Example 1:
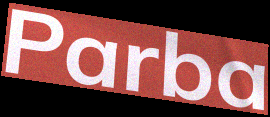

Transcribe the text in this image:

Parba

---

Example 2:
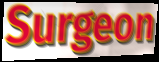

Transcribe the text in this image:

Surgeon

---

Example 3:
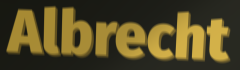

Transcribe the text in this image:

Albrecht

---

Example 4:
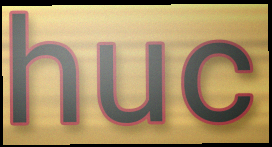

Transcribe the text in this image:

huc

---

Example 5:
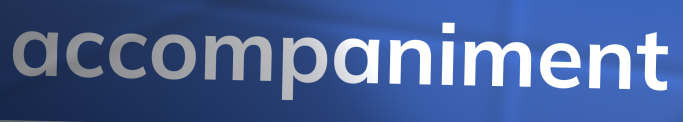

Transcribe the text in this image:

accompaniment